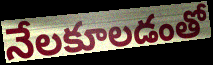
నేలకూలడంతో